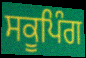
ਸਕੂਪਿੰਗ